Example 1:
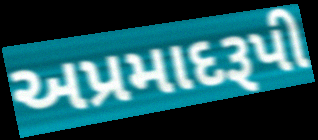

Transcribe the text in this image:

અપ્રમાદરૂપી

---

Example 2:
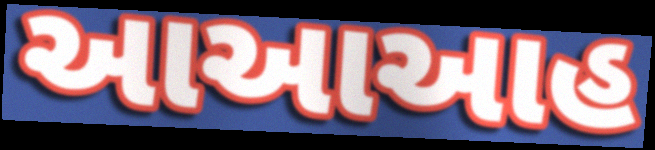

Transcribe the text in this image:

આઆઆહ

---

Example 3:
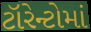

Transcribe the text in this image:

ટૉરેન્ટોમાં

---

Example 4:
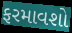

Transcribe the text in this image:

ફરમાવશો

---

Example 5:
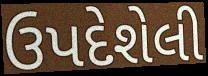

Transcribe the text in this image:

ઉપદેશેલી